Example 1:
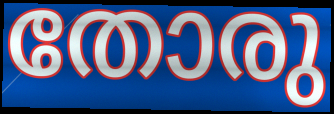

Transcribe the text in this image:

തോരു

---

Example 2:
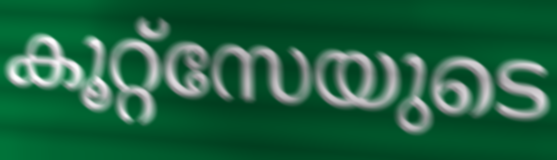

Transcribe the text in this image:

കൂറ്റ്സേയുടെ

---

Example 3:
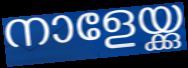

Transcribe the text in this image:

നാളേയ്ക്കു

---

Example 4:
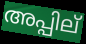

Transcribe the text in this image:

അപ്പില്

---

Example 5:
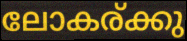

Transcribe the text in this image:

ലോകര്ക്കു